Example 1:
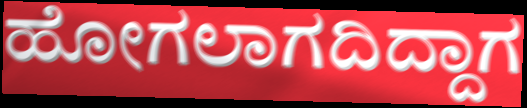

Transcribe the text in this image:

ಹೋಗಲಾಗದಿದ್ದಾಗ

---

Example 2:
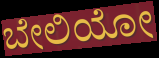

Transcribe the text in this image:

ಬೇಲಿಯೋ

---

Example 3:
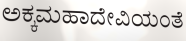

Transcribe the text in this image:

ಅಕ್ಕಮಹಾದೇವಿಯಂತೆ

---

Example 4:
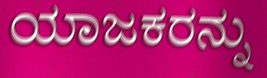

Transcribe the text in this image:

ಯಾಜಕರನ್ನು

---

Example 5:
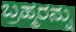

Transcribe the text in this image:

ಬ್ರಹ್ಮರನ್ನು